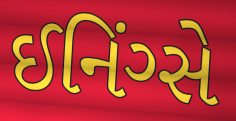
ઈનિંગ્સે